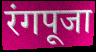
रंगपूजा